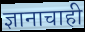
ज्ञानाचाही